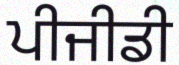
ਪੀਜੀਡੀ